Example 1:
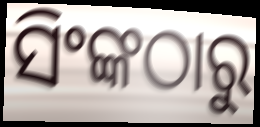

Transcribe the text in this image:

ସିଂଙ୍କଠାରୁ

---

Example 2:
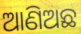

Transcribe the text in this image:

ଆଣିଅଛ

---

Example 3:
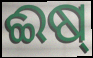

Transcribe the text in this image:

ଈଷ୍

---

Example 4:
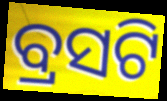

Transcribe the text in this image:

ବ୍ରସଟି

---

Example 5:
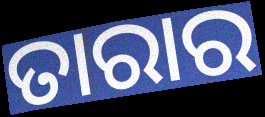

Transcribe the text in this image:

ତାରାର